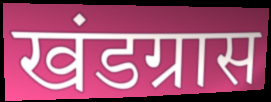
खंडग्रास